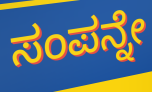
ಸಂಪನ್ನೇ